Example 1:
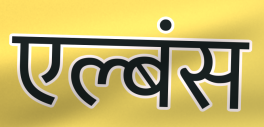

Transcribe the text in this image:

एल्बंस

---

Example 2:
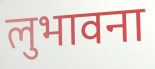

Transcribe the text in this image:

लुभावना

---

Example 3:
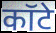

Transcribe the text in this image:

कॉटे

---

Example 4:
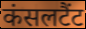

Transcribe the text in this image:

कंसलटैंट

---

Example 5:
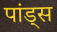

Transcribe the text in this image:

पांड्स